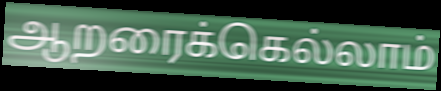
ஆறரைக்கெல்லாம்